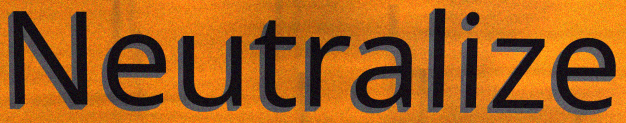
Neutralize